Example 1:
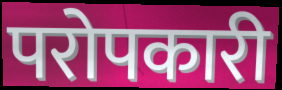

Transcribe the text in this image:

परोपकारी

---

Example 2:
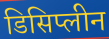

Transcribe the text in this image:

डिसिप्लीन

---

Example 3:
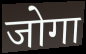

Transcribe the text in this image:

जोगा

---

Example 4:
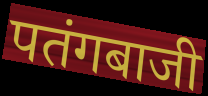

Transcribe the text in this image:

पतंगबाजी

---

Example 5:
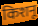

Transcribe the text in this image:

किशनू